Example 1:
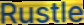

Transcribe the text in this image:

Rustle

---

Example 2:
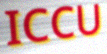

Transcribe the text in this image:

ICCU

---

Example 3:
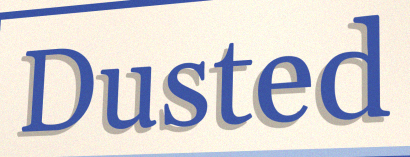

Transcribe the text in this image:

Dusted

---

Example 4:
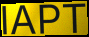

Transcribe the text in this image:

IAPT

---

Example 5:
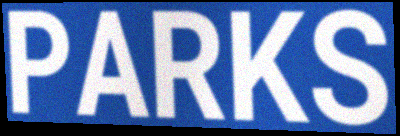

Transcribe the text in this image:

PARKS